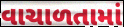
વાચાળતામાં